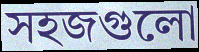
সহজগুলো